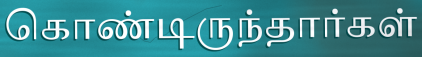
கொண்டிருந்தார்கள்